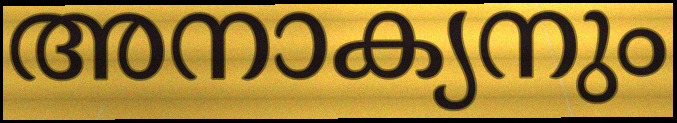
അനാക്യനും